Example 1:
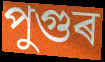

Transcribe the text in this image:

পুগুৰ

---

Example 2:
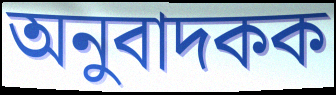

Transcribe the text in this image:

অনুবাদকক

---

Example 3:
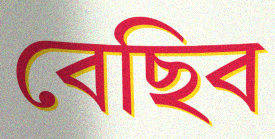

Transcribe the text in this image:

বেছিব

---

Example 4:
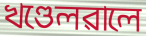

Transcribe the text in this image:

খণ্ডেলৱালে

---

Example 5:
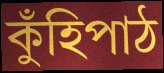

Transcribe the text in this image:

কুঁহিপাঠ